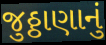
જુઠ્ઠાણાનું